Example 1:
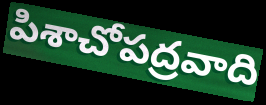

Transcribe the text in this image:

పిశాచోపద్రవాది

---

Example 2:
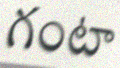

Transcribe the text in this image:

గంటా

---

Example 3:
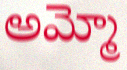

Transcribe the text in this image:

అమ్మో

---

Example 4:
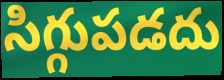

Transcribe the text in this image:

సిగ్గుపడదు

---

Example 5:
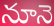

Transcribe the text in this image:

నూనె